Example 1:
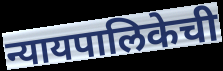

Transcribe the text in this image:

न्यायपालिकेची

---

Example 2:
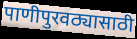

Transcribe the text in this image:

पाणीपुरवठ्यासाठी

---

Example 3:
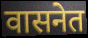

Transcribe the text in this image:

वासनेत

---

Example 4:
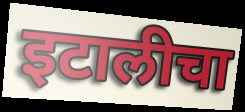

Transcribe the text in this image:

इटालीचा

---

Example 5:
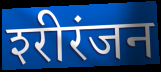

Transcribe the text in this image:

श्रीरंजन